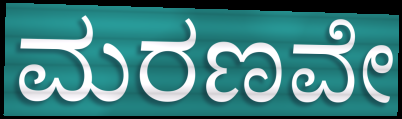
ಮರಣವೇ